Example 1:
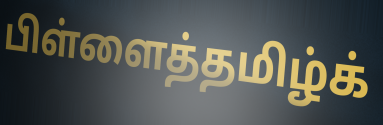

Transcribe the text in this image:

பிள்ளைத்தமிழ்க்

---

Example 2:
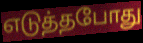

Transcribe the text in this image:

எடுத்தபோது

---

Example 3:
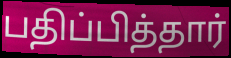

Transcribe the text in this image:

பதிப்பித்தார்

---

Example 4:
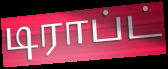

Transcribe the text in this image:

டிராப்ட்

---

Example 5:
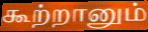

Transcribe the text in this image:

கூற்றானும்